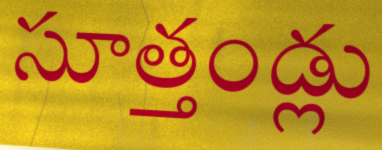
సూత్తండ్లు